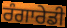
ਰੰਗਾਰੇਡੀ